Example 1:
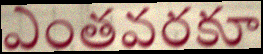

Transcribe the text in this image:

ఎంతవరకూ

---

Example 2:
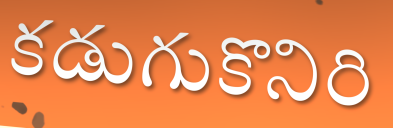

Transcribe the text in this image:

కడుగుకొనిరి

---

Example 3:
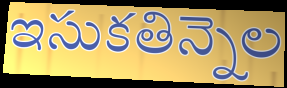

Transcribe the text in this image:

ఇసుకతిన్నెల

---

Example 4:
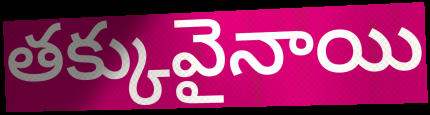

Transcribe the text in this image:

తక్కువైనాయి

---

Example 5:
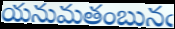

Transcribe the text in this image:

యనుమతంబునఁ